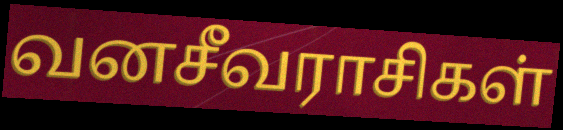
வனசீவராசிகள்